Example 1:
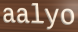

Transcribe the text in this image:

aalyo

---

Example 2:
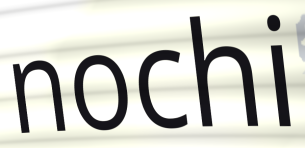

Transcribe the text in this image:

nochi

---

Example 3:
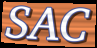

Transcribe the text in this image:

SAC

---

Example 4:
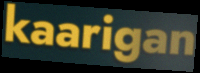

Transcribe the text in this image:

kaarigan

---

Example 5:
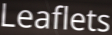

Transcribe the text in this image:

Leaflets